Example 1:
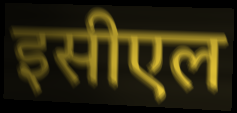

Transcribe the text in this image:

इसीएल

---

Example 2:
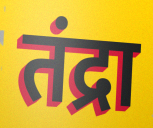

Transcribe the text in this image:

तंद्रा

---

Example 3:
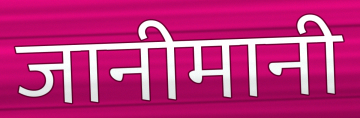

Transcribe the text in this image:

जानीमानी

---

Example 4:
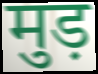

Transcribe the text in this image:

मुड़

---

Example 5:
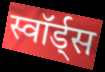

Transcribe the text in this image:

स्वॉर्ड्स